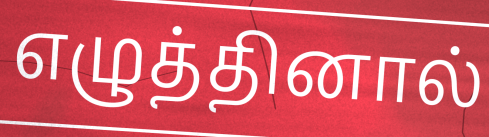
எழுத்தினால்